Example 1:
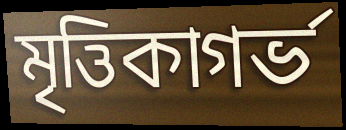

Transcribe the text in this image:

মৃত্তিকাগর্ভ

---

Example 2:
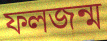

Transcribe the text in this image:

ফলজন্ম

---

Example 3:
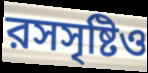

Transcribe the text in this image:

রসসৃষ্টিও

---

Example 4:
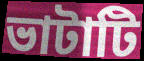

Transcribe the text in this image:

ভাটাটি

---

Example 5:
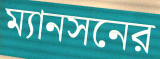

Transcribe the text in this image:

ম্যানসনের